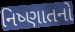
નિષ્ણાતનો